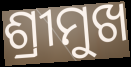
ଶ୍ରୀମୁଖ